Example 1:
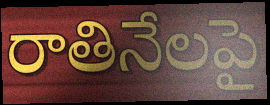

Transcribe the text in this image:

రాతినేలపై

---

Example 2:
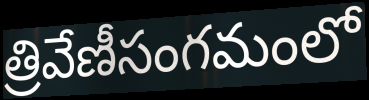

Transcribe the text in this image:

త్రివేణీసంగమంలో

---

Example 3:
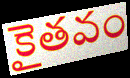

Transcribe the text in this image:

కైతవం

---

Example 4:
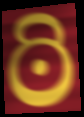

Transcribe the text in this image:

ఠి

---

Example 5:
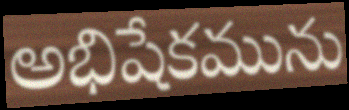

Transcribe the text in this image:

అభిషేకమును